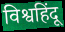
विश्वहिंदू